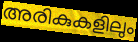
അരികുകളിലും